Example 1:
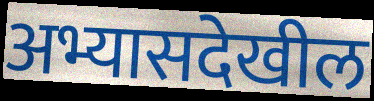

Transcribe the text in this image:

अभ्यासदेखील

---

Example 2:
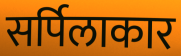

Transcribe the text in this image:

सर्पिलाकार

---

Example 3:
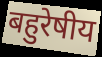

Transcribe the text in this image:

बहुरेषीय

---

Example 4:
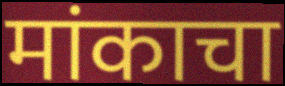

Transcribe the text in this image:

मांकाचा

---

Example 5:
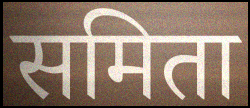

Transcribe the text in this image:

समिता